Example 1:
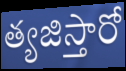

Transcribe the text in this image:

త్యజిస్తారో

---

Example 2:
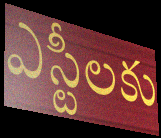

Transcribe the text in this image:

ఎస్టీలకు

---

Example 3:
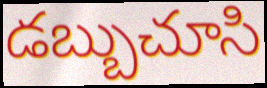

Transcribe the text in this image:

డబ్బుచూసి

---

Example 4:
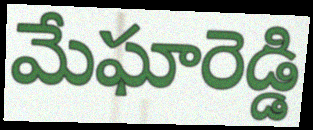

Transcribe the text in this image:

మేఘారెడ్డి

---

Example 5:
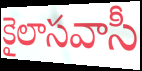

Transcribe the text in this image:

కైలాసవాసీ